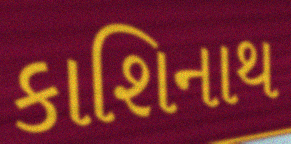
કાશિનાથ